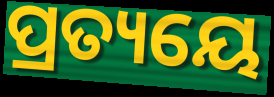
ପ୍ରତ୍ୟୟେ